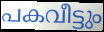
പകവീട്ടും